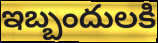
ఇబ్బందులకి